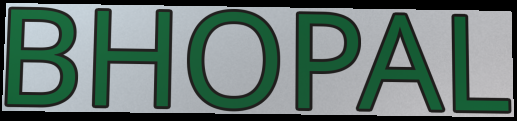
BHOPAL